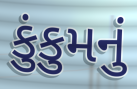
કુંકુમનું